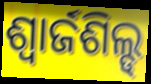
ଶ୍ୱାର୍ଜଶିଲ୍ଡ୍